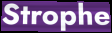
Strophe